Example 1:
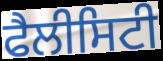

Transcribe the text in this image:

ਫੈਲੀਸਿਟੀ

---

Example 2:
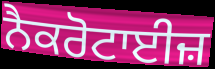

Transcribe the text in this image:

ਨੈਕਰੋਟਾਈਜ਼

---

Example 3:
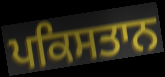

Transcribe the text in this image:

ਪਕਿਸਤਾਨ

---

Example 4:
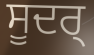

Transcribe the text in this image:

ਸੂਦਰ੍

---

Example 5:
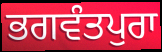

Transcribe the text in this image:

ਭਗਵੰਤਪੁਰਾ